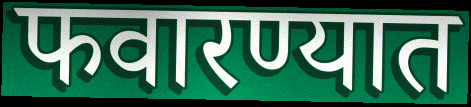
फवारण्यात